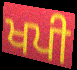
ਖਪੀ